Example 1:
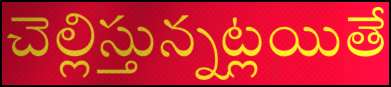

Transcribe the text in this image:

చెల్లిస్తున్నట్లయితే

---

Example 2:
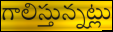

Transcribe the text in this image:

గాలిస్తున్నట్లు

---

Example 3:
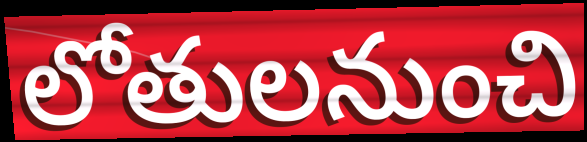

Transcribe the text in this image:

లోతులనుంచి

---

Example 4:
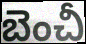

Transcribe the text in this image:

బెంచీ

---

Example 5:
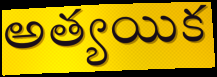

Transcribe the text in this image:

అత్యయిక